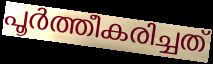
പൂർത്തീകരിച്ചത്